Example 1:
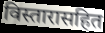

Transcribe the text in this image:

विस्तारासहित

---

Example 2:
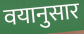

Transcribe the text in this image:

वयानुसार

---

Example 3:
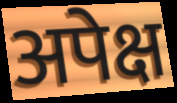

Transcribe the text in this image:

अपेक्ष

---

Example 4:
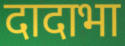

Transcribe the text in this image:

दादाभा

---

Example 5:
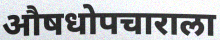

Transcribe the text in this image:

औषधोपचाराला